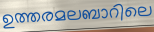
ഉത്തരമലബാറിലെ